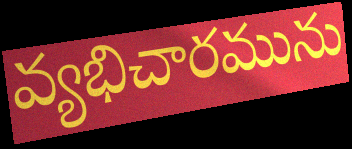
వ్యభిచారమును